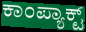
ಕಾಂಪ್ಯಾಕ್ಟ್